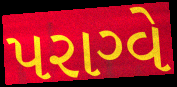
પરાગ્વે